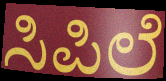
ಸಿಪಿಲೆ